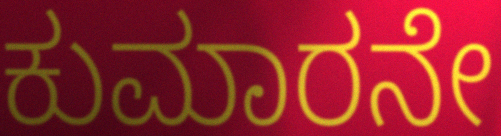
ಕುಮಾರನೇ